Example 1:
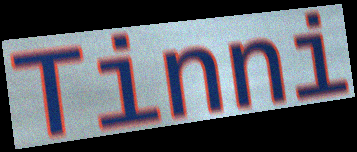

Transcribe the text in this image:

Tinni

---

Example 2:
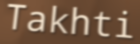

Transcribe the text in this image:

Takhti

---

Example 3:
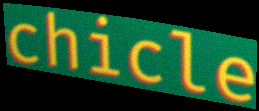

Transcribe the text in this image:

chicle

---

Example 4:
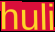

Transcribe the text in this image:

huli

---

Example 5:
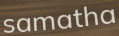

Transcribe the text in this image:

samatha